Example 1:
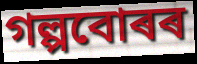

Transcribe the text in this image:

গল্পবোৰৰ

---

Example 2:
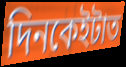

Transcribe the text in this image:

দিনকেইটাত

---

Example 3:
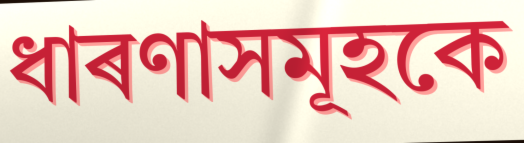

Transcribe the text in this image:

ধাৰণাসমূহকে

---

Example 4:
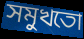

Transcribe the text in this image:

সমুখতো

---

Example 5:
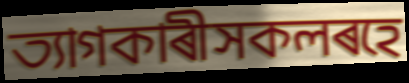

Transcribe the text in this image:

ত্যাগকাৰীসকলৰহে